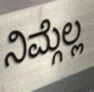
ನಿಮ್ಗೆಲ್ಲ